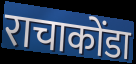
राचाकोंडा